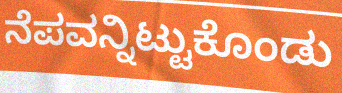
ನೆಪವನ್ನಿಟ್ಟುಕೊಂಡು